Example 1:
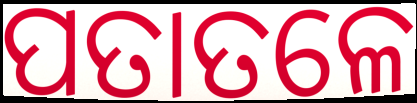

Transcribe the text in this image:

ପତାତଳେ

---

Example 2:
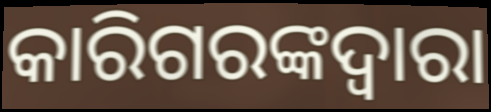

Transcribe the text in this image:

କାରିଗରଙ୍କଦ୍ୱାରା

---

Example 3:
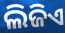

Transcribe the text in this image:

ଲିଜିଏ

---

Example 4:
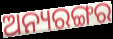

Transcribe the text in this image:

ଅନ୍ୟରଙ୍ଗର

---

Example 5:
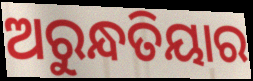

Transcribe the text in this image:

ଅରୁନ୍ଧତିୟାର